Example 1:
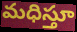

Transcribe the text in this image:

మధిస్తూ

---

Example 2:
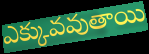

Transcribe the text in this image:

ఎక్కువవుతాయి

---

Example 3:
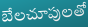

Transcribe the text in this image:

బేలచూపులతో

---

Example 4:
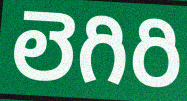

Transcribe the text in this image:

లెగిరి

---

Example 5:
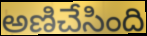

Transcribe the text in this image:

అణిచేసింది